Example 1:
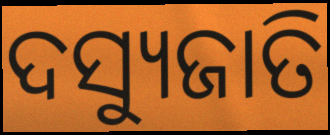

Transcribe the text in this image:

ଦସ୍ୟୁଜାତି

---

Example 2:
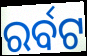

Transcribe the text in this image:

ରର୍ବଟ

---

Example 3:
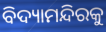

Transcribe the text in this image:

ବିଦ୍ୟାମନ୍ଦିରକୁ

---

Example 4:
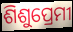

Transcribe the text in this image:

ଶିଶୁପ୍ରେମୀ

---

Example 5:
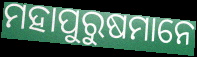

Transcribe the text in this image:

ମହାପୁରୁଷମାନେ